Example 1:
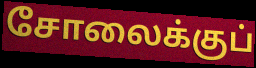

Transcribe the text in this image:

சோலைக்குப்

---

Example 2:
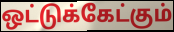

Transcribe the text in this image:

ஒட்டுக்கேட்கும்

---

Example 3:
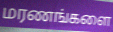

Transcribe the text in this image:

மரணங்களை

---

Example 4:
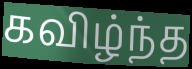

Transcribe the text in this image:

கவிழ்ந்த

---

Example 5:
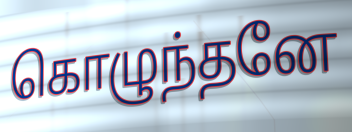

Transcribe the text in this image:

கொழுந்தனே